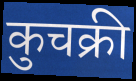
कुचक्री